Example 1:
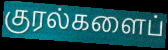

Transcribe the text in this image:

குரல்களைப்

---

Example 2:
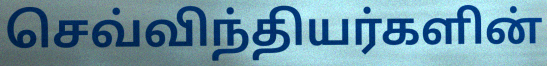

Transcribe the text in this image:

செவ்விந்தியர்களின்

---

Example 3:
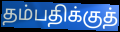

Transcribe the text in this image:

தம்பதிக்குத்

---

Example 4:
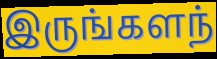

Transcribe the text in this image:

இருங்களந்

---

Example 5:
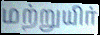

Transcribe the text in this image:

மற்றுயிர்